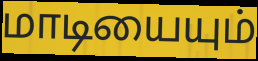
மாடியையும்